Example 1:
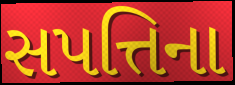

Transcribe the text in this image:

સપત્તિના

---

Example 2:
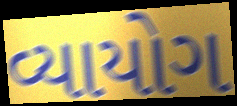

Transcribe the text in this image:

વ્યાયોગ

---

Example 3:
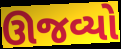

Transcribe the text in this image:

ઊજવ્યો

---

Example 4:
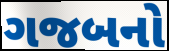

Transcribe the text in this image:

ગજબનો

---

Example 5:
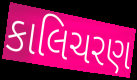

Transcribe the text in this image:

કાલિચરણ